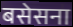
बसेसना